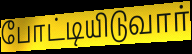
போட்டியிடுவார்